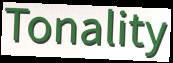
Tonality